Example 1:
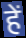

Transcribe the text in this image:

हें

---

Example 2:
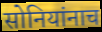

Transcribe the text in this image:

सोनियांनाच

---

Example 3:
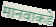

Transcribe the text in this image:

मानवाकडे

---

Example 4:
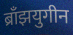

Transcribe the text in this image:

ब्राँझयुगीन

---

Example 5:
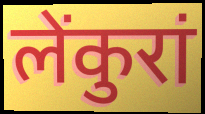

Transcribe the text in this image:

लेंकुरां